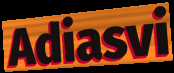
Adiasvi